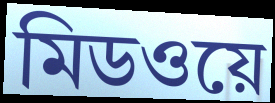
মিডওয়ে